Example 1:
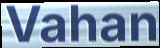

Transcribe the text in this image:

Vahan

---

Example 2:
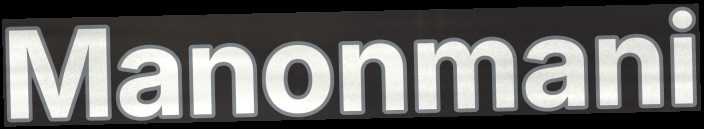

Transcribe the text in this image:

Manonmani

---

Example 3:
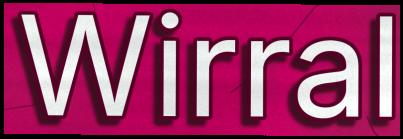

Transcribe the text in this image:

Wirral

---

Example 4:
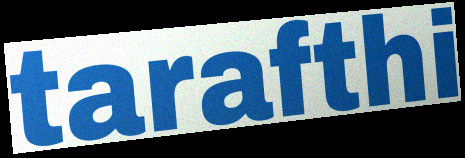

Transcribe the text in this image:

tarafthi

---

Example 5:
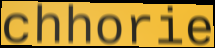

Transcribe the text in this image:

chhorie